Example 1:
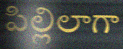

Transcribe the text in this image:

పిల్లిలాగా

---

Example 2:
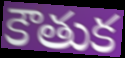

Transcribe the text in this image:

కౌతుక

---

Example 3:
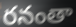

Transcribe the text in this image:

రనంతా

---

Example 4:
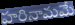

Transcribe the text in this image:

హరినామమే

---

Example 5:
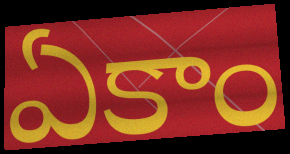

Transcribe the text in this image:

ఏకాం